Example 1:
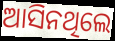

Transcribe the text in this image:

ଆସିନଥିଲେ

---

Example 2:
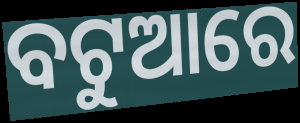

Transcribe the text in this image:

ବଟୁଆରେ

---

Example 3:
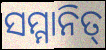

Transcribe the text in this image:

ସମ୍ମାନିତ୍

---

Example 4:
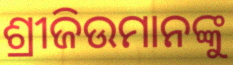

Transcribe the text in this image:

ଶ୍ରୀଜିଉମାନଙ୍କୁ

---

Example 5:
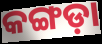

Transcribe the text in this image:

କଙ୍ଗଡ଼ା